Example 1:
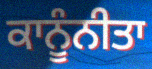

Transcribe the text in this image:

ਕਾਨੂੰਨੀਤਾ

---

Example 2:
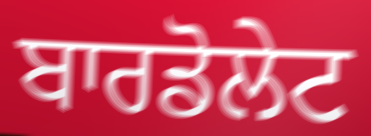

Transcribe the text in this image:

ਬਾਰਡੋਲੇਟ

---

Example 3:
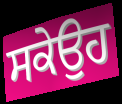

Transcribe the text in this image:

ਸਕੇਉਹ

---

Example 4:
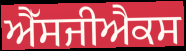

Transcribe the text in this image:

ਐੱਸਜੀਐਕਸ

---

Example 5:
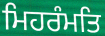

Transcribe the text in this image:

ਮਿਹਰੰਮਤਿ